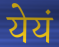
येयं